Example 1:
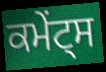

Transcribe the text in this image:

ਕਮੇਂਟ੍ਸ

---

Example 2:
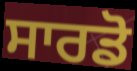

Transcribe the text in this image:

ਸਾਰਡੋ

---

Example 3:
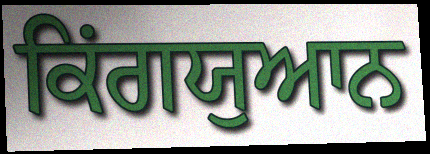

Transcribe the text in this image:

ਕਿਂਗਯੁਆਨ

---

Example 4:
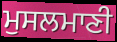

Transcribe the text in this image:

ਮੁਸਲਮਾਣੀ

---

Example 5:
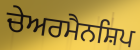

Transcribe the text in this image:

ਚੇਅਰਮੈਨਸ਼ਿਪ